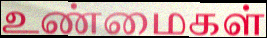
உண்மைகள்